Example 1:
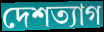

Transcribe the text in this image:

দেশত্যাগ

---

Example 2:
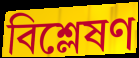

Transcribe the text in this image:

বিশ্লেষণ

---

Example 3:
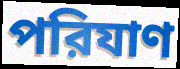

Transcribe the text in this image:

পরিযাণ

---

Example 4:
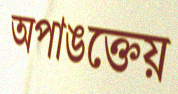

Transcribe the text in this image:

অপাঙক্তেয়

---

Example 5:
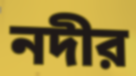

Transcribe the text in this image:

নদীর